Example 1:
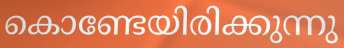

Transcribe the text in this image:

കൊണ്ടേയിരിക്കുന്നു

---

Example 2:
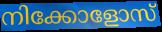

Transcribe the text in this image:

നിക്കോളോസ്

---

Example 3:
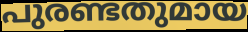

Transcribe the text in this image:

പുരണ്ടതുമായ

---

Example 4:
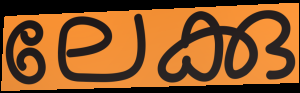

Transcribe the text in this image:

ലേക്കു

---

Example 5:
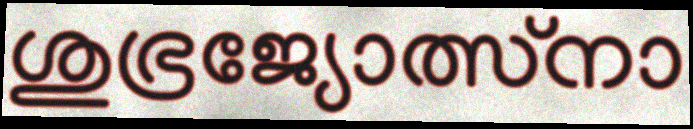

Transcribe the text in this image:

ശുഭ്രജ്യോത്സ്നാ